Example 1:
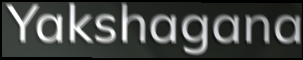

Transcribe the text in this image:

Yakshagana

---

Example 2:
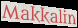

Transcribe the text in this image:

Makkalin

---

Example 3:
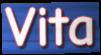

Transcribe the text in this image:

Vita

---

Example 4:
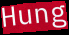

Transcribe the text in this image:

Hung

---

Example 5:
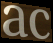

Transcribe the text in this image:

ac